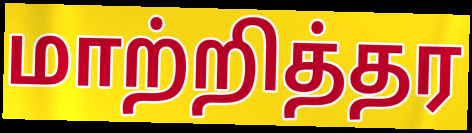
மாற்றித்தர